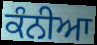
ਕੰਨੀਆ